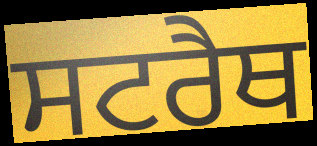
ਸਟਰੈਥ